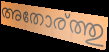
അതോര്ത്തു